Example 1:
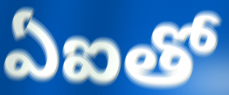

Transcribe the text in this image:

ఏఐతో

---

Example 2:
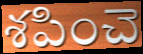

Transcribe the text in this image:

శపించె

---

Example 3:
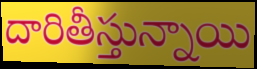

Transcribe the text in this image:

దారితీస్తున్నాయి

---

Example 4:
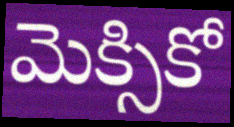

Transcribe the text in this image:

మెక్సికో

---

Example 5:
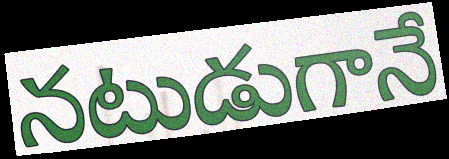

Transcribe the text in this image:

నటుడుగానే